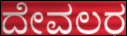
ದೇವಲರ